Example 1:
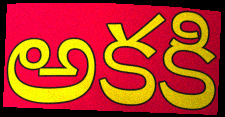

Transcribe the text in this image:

అకకి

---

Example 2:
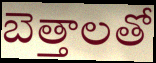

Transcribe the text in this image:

బెత్తాలతో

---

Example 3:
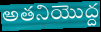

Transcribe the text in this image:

అతనియొద్ద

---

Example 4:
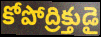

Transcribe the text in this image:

కోపోద్రిక్తుడై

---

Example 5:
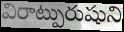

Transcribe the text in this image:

విరాట్పురుషుని